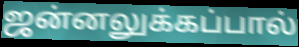
ஜன்னலுக்கப்பால்